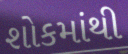
શોકમાંથી